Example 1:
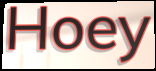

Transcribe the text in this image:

Hoey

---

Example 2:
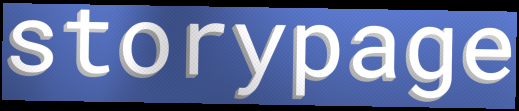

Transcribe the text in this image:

storypage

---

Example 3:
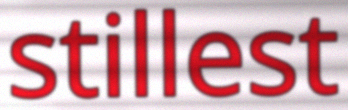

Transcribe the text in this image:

stillest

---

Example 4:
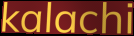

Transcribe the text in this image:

kalachi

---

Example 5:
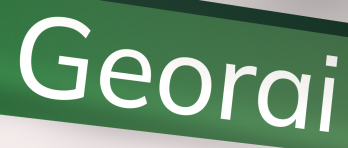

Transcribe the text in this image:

Georai